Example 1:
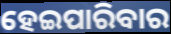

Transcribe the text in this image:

ହେଇପାରିବାର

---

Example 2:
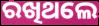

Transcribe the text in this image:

ରଖିଥଲେ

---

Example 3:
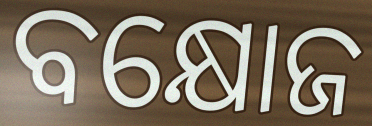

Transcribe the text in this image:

ବକ୍ଷୋଜ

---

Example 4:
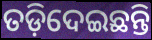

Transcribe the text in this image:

ତଡ଼ିଦେଇଛନ୍ତି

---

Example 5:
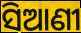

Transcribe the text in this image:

ସିଆଣୀ